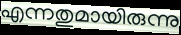
എന്നതുമായിരുന്നു